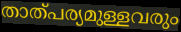
താത്പര്യമുള്ളവരും